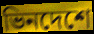
ভিনদেশে